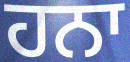
ਹਨਾ